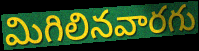
మిగిలినవారగు